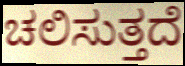
ಚಲಿಸುತ್ತದೆ